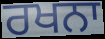
ਰਖਨਾ